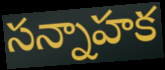
సన్నాహక